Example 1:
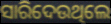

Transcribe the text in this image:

ସାରିଦେଉଥିଲେ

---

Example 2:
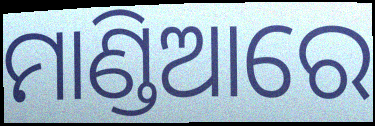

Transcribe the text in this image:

ମାଣ୍ଡିଆରେ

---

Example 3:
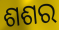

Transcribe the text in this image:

ଶଶର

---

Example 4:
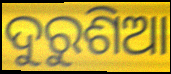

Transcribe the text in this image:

ଦୁରୁଶିଆ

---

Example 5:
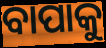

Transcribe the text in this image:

ବାପାକୁ